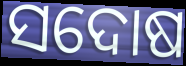
ସଦୋଷ